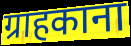
ग्राहकाना